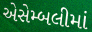
એસેમ્બલીમાં